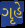
ગૃહે